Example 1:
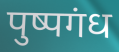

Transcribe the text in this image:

पुष्पगंध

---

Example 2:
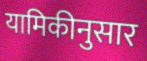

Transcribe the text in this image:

यामिकीनुसार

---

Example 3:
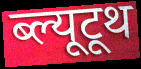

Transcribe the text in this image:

ब्ल्यूटूथ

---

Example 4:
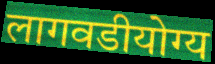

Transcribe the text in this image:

लागवडीयोग्य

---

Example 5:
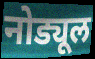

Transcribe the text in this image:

नोड्यूल